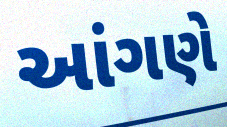
આંગણે